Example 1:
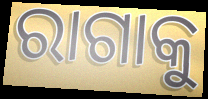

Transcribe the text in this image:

ରାଗାକୁ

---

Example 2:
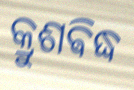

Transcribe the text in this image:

କ୍ରୁଶଵିଦ୍ଧ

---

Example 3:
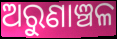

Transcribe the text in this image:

ଅରୁଣାଞ୍ଚଳ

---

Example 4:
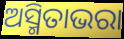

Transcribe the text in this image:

ଅସ୍ମିତାଭରା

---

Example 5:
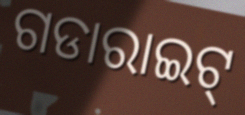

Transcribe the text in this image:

ଗଡାରାଇଟ୍